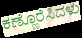
ಕಣ್ಣೊರೆಸಿದಳು